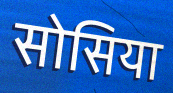
सोसिया